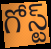
గోస్ట్